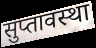
सुप्तावस्था